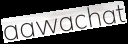
aawachat